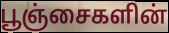
பூஞ்சைகளின்